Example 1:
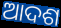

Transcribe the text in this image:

ଆଦଶ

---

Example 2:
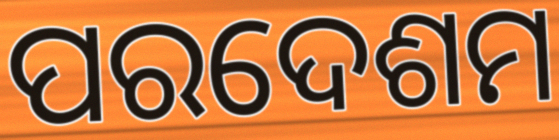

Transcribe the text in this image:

ପରଦେଶମ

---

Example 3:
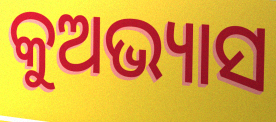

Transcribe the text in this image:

କୁଅଭ୍ୟାସ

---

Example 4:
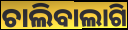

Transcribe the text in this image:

ଚାଲିବାଲାଗି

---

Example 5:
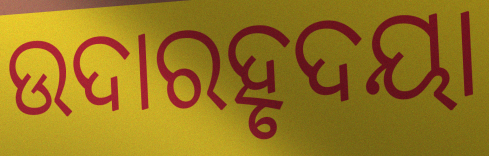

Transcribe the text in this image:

ଉଦାରହୃଦୟା